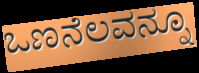
ಒಣನೆಲವನ್ನೂ